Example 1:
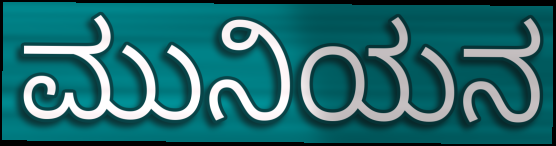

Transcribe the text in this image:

ಮುನಿಯನ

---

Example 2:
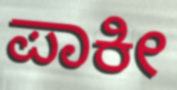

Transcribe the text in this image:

ಪಾಕೀ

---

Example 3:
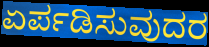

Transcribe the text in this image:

ಏರ್ಪಡಿಸುವುದರ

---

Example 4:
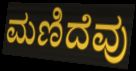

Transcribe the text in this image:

ಮಣಿದೆವು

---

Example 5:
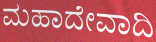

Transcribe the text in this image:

ಮಹಾದೇವಾದಿ